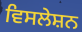
ਵਿਸਲੇਸ਼ਨ